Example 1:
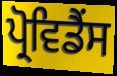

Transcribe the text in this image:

ਪ੍ਰੋਵਿਡੈਂਸ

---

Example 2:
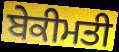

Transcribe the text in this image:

ਬੇਕੀਮਤੀ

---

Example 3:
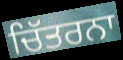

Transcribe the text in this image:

ਚਿੱਤਰਨਾ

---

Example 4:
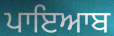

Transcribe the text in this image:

ਪਾਇਆਬ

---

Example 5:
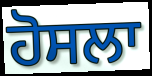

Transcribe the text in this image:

ਹੋਸਲਾ